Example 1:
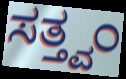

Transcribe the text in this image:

ಸತ್ತ್ವಂ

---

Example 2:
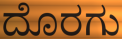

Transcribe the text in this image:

ದೊರಗು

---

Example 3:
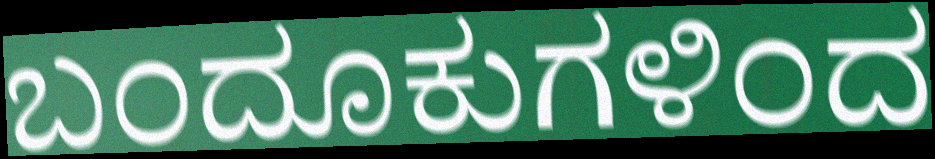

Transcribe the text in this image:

ಬಂದೂಕುಗಳಿಂದ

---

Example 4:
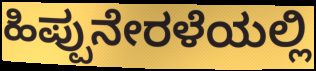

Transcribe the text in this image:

ಹಿಪ್ಪುನೇರಳೆಯಲ್ಲಿ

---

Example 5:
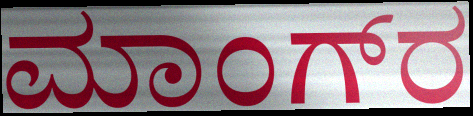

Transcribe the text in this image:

ಮಾಂಗ್‌ರ